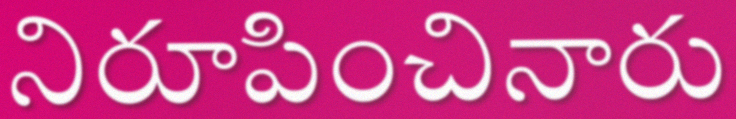
నిరూపించినారు